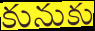
కునుకు